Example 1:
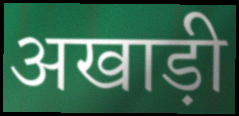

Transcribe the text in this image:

अखाड़ी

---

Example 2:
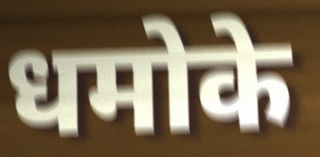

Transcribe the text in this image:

धमोके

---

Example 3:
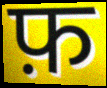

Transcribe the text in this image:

फ़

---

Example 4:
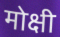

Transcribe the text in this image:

मोक्षी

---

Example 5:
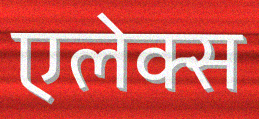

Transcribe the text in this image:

एलेक्स